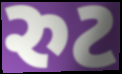
રુટ